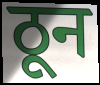
ठून